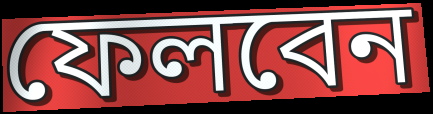
ফেলবেন